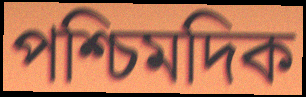
পশ্চিমদিক